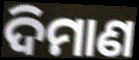
ଦିମାଣ